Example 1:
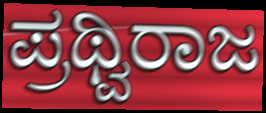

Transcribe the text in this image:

ಪ್ರಥ್ವಿರಾಜ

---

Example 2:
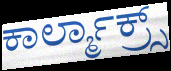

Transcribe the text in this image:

ಕಾರ್ಲ್ಮಾಕ್ರ್ಸ್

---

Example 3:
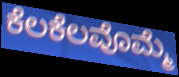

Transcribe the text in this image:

ಕೆಲಕೆಲವೊಮ್ಮೆ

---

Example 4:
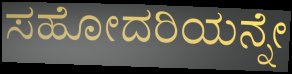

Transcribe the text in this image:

ಸಹೋದರಿಯನ್ನೇ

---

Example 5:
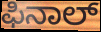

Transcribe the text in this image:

ಫಿನಾಲ್